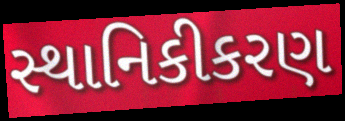
સ્થાનિકીકરણ